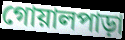
গোয়ালপাড়া